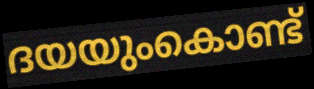
ദയയുംകൊണ്ട്